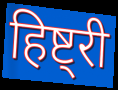
हिष्ट्री